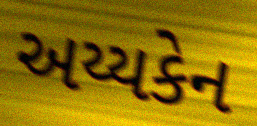
અય્યકેન